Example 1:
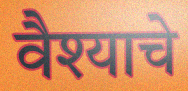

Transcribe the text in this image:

वैश्याचे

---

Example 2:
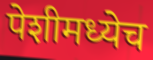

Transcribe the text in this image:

पेशीमध्येच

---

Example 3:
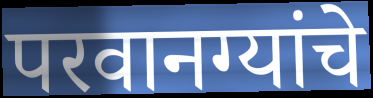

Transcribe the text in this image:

परवानग्यांचे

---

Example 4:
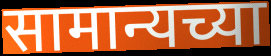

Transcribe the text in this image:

सामान्यच्या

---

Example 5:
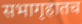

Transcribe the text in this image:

सभागृहातच